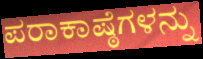
ಪರಾಕಾಷ್ಠೆಗಳನ್ನು